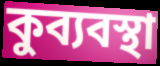
কুব্যবস্থা